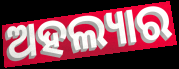
ଅହଲ୍ୟାର